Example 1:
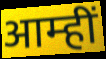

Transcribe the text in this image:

आम्हीं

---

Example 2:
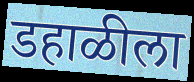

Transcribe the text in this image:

डहाळीला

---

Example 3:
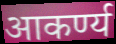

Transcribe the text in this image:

आकर्ण्य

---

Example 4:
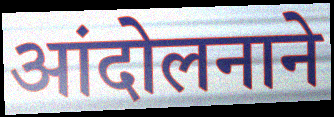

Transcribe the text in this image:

आंदोलनाने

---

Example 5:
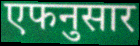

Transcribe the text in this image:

एफनुसार